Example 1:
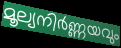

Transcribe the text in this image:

മൂല്യനിർണ്ണയവും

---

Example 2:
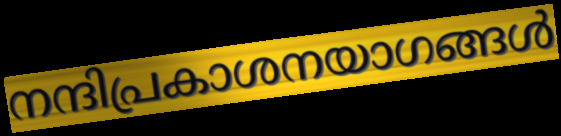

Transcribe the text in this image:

നന്ദിപ്രകാശനയാഗങ്ങൾ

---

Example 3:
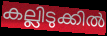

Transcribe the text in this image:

കല്ലിടുക്കിൽ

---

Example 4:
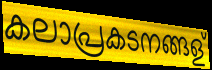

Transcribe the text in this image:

കലാപ്രകടനങ്ങള്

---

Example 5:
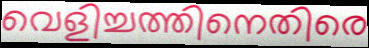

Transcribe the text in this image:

വെളിച്ചത്തിനെതിരെ